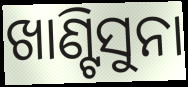
ଖାଣ୍ଟିସୁନା